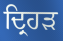
ਦ੍ਰਿਹੜ